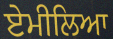
ਏਮੀਲਿਆ